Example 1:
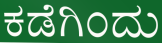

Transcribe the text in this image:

ಕಡೆಗಿಂದು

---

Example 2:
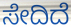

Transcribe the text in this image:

ಸೇದಿದೆ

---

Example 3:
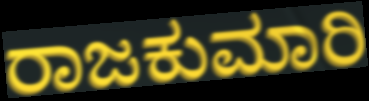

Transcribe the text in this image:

ರಾಜಕುಮಾರಿ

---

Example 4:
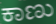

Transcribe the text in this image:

ಕಾಣು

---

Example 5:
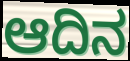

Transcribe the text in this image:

ಆದಿನ